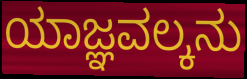
ಯಾಜ್ಞವಲ್ಕನು